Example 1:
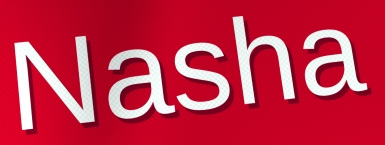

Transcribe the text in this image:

Nasha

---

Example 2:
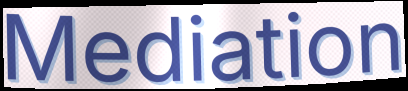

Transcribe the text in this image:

Mediation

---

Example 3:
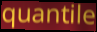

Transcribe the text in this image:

quantile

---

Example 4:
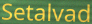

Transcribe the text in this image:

Setalvad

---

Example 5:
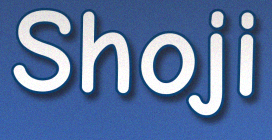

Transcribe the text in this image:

Shoji